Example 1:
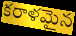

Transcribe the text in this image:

కరాళమైన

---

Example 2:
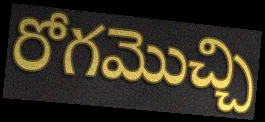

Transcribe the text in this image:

రోగమొచ్చి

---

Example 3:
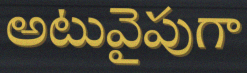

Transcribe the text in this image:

అటువైపుగా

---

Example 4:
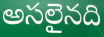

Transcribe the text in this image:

అసలైనది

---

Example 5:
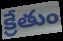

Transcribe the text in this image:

క్రేతుం